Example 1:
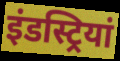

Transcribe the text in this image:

इंडस्ट्रियां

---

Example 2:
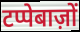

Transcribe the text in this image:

टप्पेबाज़ों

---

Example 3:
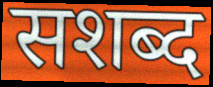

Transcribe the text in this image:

सशब्द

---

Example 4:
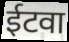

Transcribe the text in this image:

ईटवा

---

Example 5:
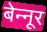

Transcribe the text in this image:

बेन्नूर